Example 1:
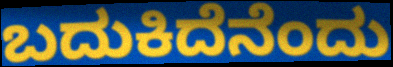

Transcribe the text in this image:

ಬದುಕಿದೆನೆಂದು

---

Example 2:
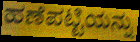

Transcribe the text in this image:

ಹಣೆಪಟ್ಟಿಯನ್ನು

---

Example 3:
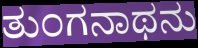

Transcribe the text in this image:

ತುಂಗನಾಥನು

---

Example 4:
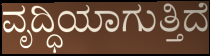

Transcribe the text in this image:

ವೃದ್ಧಿಯಾಗುತ್ತಿದೆ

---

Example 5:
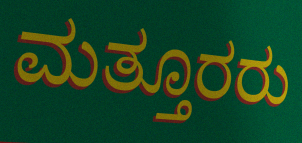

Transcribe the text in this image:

ಮತ್ತೂರರು